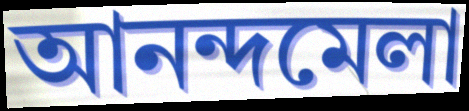
আনন্দমেলা